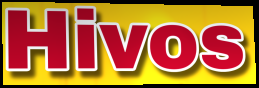
Hivos